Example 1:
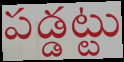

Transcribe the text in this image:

పడ్డట్టు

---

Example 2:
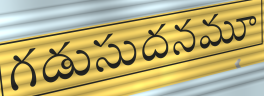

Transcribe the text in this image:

గడుసుదనమూ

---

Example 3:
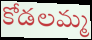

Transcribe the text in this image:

కోడలమ్మ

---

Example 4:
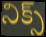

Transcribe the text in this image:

నిక్స్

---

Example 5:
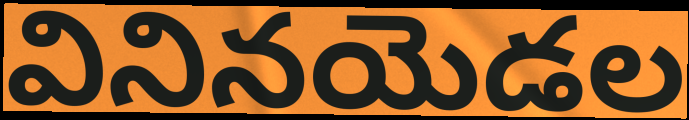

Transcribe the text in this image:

వినినయెడల